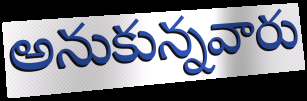
అనుకున్నవారు